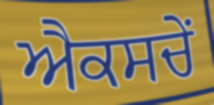
ਐਕਸਚੇਂ